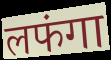
लफंगा